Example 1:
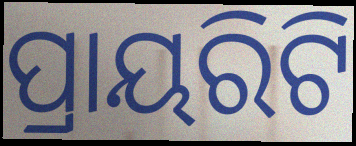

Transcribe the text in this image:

ପ୍ରାୟରିଟି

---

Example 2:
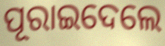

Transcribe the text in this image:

ପୂରାଇଦେଲେ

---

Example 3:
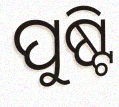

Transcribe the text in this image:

ପୁଷ୍ଟି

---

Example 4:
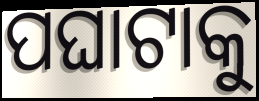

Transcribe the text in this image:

ପଘାଟାକୁ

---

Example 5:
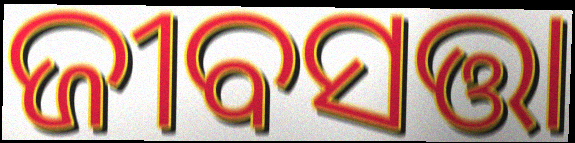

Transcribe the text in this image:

ଜୀବସତ୍ତା